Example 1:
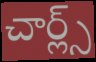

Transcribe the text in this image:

చార్ల్స్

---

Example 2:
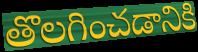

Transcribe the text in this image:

తొలగించడానికి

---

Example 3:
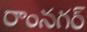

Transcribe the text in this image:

రాంనగర్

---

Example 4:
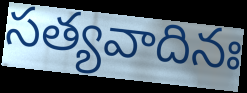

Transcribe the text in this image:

సత్యవాదినః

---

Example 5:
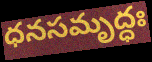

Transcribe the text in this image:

ధనసమృద్ధః